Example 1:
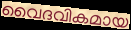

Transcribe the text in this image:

വൈദവികമായ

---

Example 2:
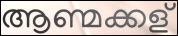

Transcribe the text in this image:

ആണ്മക്കള്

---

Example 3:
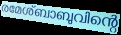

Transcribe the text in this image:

രമേശ്ബാബുവിന്റെ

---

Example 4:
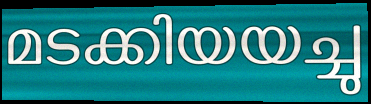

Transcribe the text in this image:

മടക്കിയയച്ചു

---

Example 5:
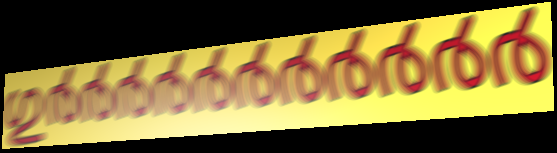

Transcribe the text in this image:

ഗുർർർർർർർർർർർ